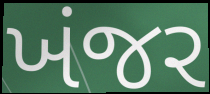
ખંજર